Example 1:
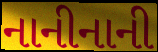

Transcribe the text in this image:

નાનીનાની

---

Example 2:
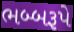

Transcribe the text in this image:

ભબ્બરૂપે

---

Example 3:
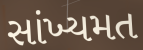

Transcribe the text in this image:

સાંખ્યમત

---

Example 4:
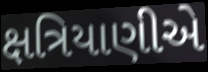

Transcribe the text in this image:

ક્ષત્રિયાણીએ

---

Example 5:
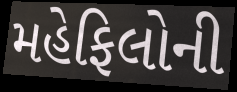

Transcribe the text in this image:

મહેફિલોની